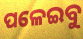
ପଳେଇବୁ